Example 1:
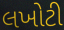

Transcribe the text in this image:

લખોટી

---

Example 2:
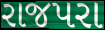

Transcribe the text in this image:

રાજપરા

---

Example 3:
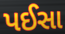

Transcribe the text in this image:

પઈસા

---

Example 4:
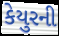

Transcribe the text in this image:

કેયુરની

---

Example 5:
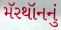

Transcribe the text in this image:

મૅરથૉનનું